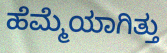
ಹೆಮ್ಮೆಯಾಗಿತ್ತು